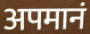
अपमानं